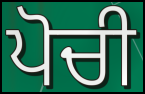
ਪੋਚੀ